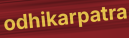
odhikarpatra